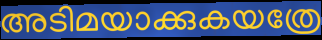
അടിമയാക്കുകയത്രേ